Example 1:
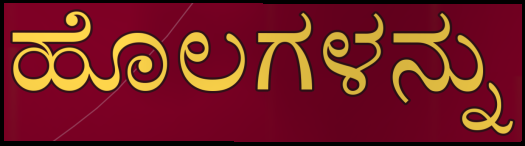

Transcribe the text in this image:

ಹೊಲಗಳನ್ನು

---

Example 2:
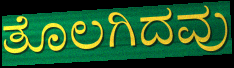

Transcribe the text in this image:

ತೊಲಗಿದವು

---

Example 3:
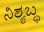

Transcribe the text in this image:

ನಿಶ್ಯಬ್ಧ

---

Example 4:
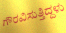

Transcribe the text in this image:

ಗೌರವಿಸುತ್ತಿದ್ದಳು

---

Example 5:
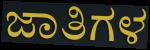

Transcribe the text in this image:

ಜಾತಿಗಳ